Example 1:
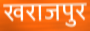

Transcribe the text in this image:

खराजपुर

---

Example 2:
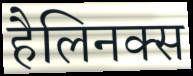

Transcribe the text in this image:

हैलिनक्स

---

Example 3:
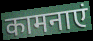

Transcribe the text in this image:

कामनाएं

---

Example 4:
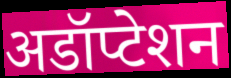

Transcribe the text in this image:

अडॉप्टेशन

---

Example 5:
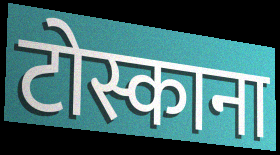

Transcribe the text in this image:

टोस्काना